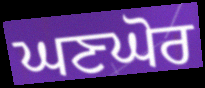
ਘਣਘੋਰ